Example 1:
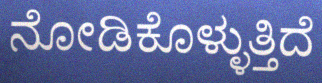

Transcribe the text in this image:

ನೋಡಿಕೊಳ್ಳುತ್ತಿದೆ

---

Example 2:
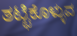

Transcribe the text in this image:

ತಟ್ಟಿಕೊಳ್ಳುವ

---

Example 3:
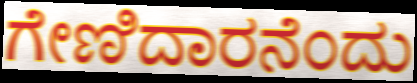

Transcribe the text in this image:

ಗೇಣಿದಾರನೆಂದು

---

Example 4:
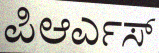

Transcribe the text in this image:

ಪಿಆರ್ಎಸ್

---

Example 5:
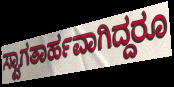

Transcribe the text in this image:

ಸ್ವಾಗತಾರ್ಹವಾಗಿದ್ದರೂ